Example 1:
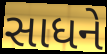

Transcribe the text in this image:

સાધને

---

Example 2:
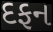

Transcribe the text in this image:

દફન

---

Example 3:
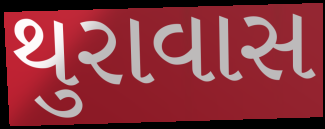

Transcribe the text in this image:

થુરાવાસ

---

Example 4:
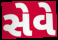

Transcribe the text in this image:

સેવે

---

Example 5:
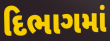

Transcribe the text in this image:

દિભાગમાં